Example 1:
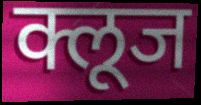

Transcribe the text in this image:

क्लूज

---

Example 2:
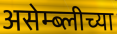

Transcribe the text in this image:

असेम्ब्लीच्या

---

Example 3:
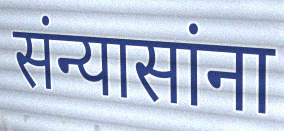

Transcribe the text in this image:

संन्यासांना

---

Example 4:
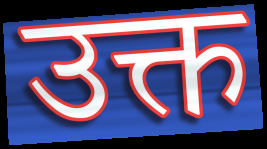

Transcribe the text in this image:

उक्त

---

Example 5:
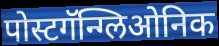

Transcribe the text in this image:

पोस्टगॅन्ग्लिओनिक